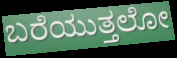
ಬರೆಯುತ್ತಲೋ